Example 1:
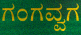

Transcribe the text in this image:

ಗಂಗವ್ವಗ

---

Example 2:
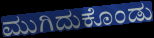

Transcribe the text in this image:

ಮುಗಿದುಕೊಂಡು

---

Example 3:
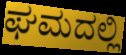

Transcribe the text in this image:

ಘಮದಲ್ಲಿ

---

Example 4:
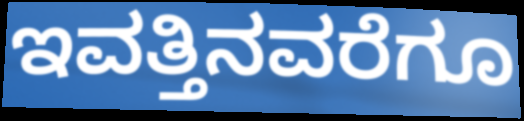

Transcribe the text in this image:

ಇವತ್ತಿನವರೆಗೂ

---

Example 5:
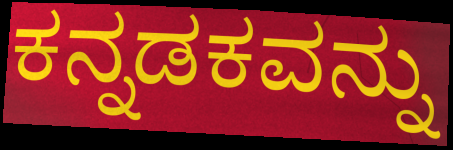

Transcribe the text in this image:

ಕನ್ನಡಕವನ್ನು